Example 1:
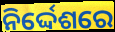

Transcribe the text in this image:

ନିର୍ଦ୍ଦେଶରେ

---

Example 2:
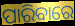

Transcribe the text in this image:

ପାରିବାରେ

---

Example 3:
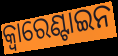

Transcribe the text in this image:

କ୍ୱାରେଣ୍ଟାଇନ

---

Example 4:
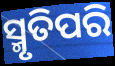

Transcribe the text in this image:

ସ୍ମୃତିପରି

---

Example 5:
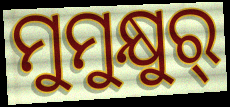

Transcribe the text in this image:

ମୁମୁକ୍ଷୁର୍